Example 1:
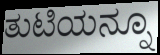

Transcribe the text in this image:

ತುಟಿಯನ್ನೂ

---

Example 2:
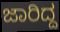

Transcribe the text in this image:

ಜಾರಿದ್ದ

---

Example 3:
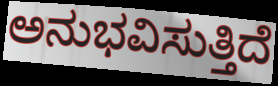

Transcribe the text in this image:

ಅನುಭವಿಸುತ್ತಿದೆ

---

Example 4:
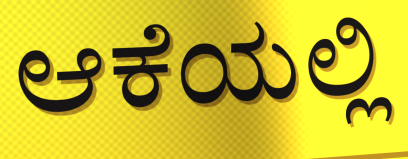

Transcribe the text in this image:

ಆಕೆಯಲ್ಲಿ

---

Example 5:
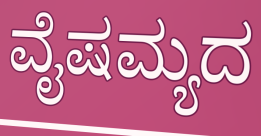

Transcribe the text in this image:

ವೈಷಮ್ಯದ